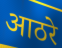
आठरे